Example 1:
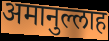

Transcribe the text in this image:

अमानुल्लाह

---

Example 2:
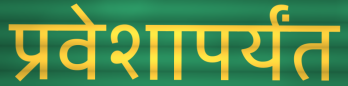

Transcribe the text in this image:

प्रवेशापर्यंत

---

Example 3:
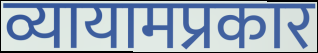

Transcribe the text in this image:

व्यायामप्रकार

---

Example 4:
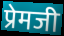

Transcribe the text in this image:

प्रेमजी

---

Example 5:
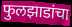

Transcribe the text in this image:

फुलझाडांचा